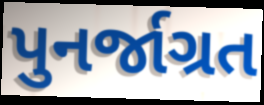
પુનર્જાગ્રત